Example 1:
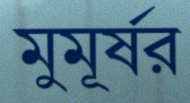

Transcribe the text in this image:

মুমূর্ষর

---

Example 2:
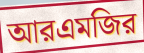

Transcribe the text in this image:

আরএমজির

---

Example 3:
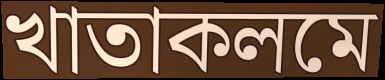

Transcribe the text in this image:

খাতাকলমে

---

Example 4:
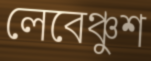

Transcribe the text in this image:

লেবেঞ্চুশ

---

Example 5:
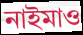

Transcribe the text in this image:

নাইমাও